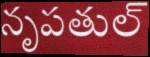
నృపతుల్